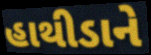
હાથીડાને